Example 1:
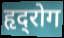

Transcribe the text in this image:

हृद्‍रोग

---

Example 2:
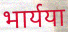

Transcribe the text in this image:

भार्यया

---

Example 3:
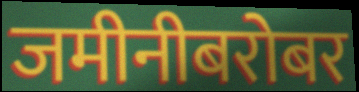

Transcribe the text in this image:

जमीनीबरोबर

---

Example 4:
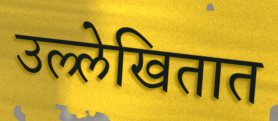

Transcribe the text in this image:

उल्लेखितात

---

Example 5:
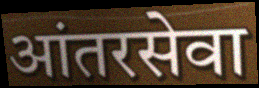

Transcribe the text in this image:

आंतरसेवा